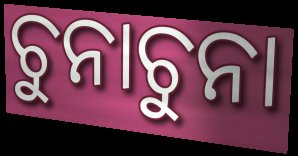
ଚୁନାଚୁନା